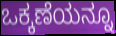
ಒಕ್ಕಣೆಯನ್ನೂ